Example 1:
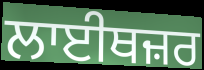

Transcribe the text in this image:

ਲਾਈਥਜ਼ਰ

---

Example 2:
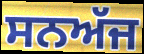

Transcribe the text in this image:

ਸਨਅੱਜ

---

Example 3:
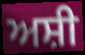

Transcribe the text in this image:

ਅਸ਼ੀ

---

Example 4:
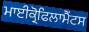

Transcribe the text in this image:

ਮਾਈਕ੍ਰੋਫਿਲਾਮੈਂਟਸ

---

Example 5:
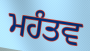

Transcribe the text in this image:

ਮਹੰਤਵ